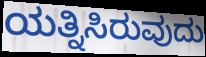
ಯತ್ನಿಸಿರುವುದು